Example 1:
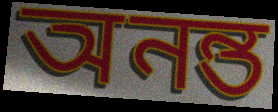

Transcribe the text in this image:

অনন্ত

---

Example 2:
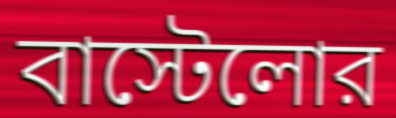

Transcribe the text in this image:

বাস্টেলোর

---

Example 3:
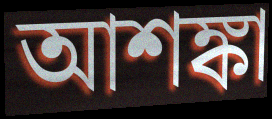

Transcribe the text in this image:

আশঙ্কা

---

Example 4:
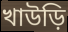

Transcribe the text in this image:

খাউড়ি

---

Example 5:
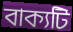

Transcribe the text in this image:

বাক্যটি